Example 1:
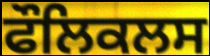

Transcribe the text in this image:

ਫੌਲਿਕਲਸ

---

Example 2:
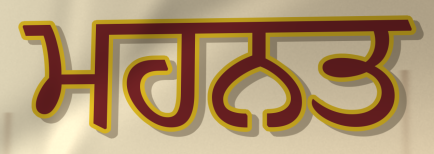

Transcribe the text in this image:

ਮਹਨਤ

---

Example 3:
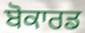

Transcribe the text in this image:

ਬੋਕਾਰਡ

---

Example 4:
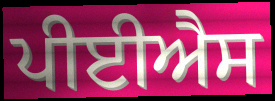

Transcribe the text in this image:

ਪੀਈਐਸ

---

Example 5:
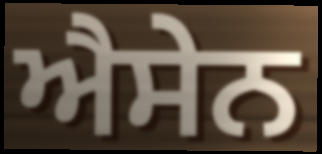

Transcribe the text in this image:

ਐਸੇਨ